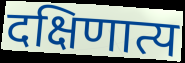
दक्षिणात्य